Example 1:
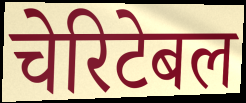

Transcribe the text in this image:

चेरिटेबल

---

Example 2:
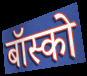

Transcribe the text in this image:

बॉस्को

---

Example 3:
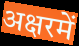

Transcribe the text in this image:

अक्षरमें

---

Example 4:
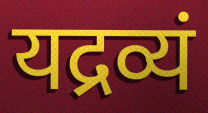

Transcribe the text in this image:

यद्रव्यं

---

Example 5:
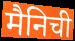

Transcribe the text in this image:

मैनिची